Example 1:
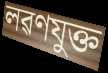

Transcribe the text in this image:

লৱণযুক্ত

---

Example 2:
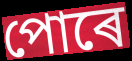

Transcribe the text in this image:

পোৰে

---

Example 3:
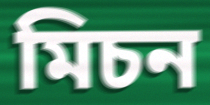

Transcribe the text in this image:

মিচন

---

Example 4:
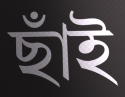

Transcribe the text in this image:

ছাঁই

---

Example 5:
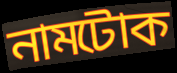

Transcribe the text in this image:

নামটোক